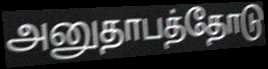
அனுதாபத்தோடு